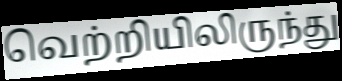
வெற்றியிலிருந்து